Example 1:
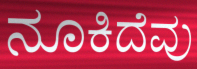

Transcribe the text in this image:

ನೂಕಿದೆವು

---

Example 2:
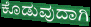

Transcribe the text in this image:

ಕೊಡುವುದಾಗಿ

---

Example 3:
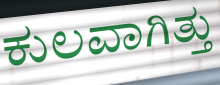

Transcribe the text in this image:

ಕುಲವಾಗಿತ್ತು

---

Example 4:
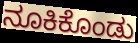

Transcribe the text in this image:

ನೂಕಿಕೊಂಡು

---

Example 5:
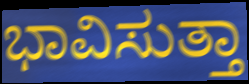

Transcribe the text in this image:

ಭಾವಿಸುತ್ತಾ